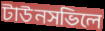
টাউনসভিলে